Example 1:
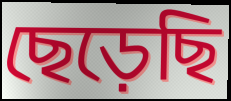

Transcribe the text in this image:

ছেড়েছি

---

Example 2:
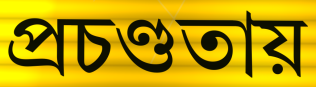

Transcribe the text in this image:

প্রচণ্ডতায়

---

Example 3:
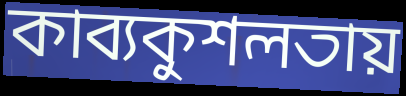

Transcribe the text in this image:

কাব্যকুশলতায়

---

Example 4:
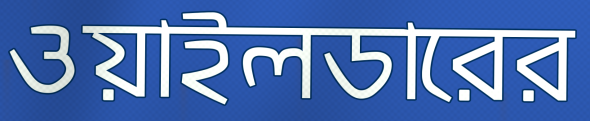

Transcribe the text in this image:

ওয়াইলডারের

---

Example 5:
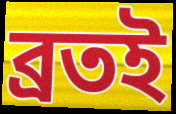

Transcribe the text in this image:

ব্রতই